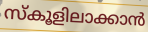
സ്കൂളിലാക്കാൻ